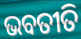
ଭବତୀତି